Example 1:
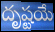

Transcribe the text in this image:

దృష్టయే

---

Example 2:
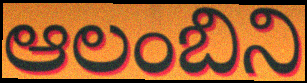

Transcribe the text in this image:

ఆలంబిని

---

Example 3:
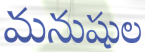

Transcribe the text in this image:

మనుషుల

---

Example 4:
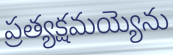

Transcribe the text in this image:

ప్రత్యక్షమయ్యెను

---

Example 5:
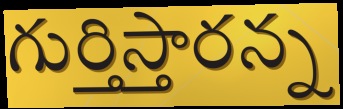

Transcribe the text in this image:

గుర్తిస్తారన్న